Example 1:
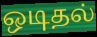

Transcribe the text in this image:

ஒடிதல்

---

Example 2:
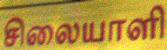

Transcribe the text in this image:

சிலையாளி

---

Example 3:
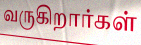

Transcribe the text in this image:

வருகிறார்கள்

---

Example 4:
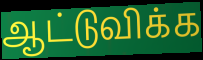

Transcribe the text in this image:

ஆட்டுவிக்க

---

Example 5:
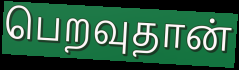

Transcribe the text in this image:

பெறவுதான்